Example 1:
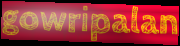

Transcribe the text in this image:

gowripalan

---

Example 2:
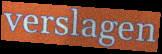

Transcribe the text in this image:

verslagen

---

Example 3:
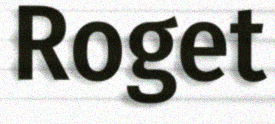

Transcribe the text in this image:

Roget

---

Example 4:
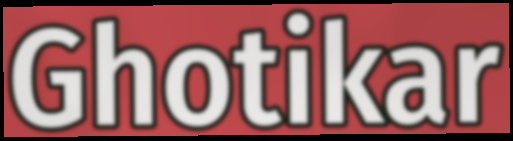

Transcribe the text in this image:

Ghotikar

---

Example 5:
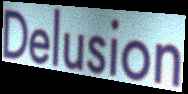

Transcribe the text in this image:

Delusion